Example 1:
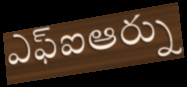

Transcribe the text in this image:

ఎఫ్ఐఆర్ను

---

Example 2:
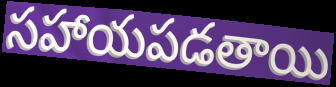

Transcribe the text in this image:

సహాయపడతాయి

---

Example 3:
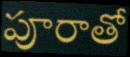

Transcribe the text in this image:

పూరాతో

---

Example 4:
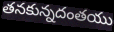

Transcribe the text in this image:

తనకున్నదంతయు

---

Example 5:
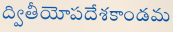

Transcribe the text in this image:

ద్వితీయోపదేశకాండమ